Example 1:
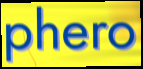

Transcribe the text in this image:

phero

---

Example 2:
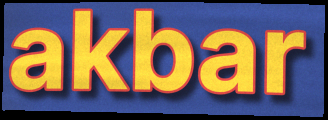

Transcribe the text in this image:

akbar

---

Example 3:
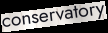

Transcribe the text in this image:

conservatory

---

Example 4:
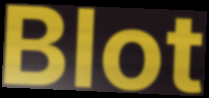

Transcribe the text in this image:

Blot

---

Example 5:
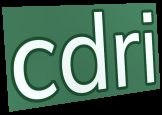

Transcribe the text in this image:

cdri